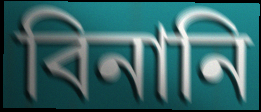
বিনানি